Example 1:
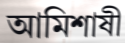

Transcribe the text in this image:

আমিশাষী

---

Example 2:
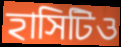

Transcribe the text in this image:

হাসিটিও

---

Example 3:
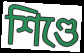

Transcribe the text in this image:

শিণ্ডে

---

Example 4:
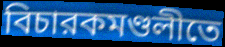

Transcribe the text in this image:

বিচারকমণ্ডলীতে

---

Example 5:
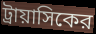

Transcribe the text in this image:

ট্রায়াসিকের